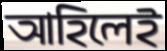
আহিলেই